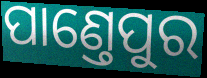
ପାଣ୍ତେପୁର